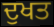
ਦੁਖਤ